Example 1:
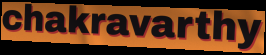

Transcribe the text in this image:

chakravarthy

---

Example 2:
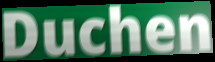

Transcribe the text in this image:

Duchen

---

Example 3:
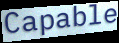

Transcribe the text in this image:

Capable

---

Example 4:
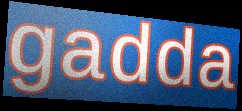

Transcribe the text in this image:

gadda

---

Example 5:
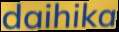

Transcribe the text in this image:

daihika